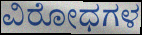
ವಿರೋಧಗಳ